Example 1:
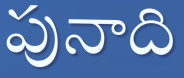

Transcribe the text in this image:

పునాది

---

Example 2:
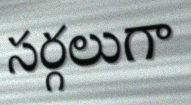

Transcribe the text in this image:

సర్గలుగా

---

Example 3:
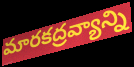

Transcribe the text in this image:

మారకద్రవ్యాన్ని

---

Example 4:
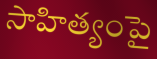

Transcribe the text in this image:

సాహిత్యంపై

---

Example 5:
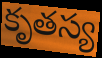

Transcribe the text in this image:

కృతస్య